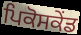
ਪਿਕੋਸਕੇਂਡ